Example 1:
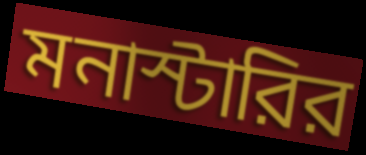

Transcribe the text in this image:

মনাস্টারির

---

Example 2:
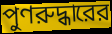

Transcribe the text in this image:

পুণরুদ্ধারের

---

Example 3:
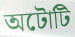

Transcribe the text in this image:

অটোটি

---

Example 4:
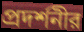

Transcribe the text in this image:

প্রদর্শনীর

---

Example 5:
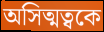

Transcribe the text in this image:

অসিত্মত্বকে